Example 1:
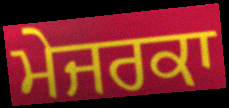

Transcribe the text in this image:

ਮੇਜਰਕਾ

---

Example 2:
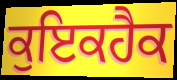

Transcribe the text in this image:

ਕੁਇਕਹੈਕ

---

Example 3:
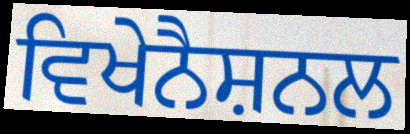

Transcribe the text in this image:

ਵਿਖੇਨੈਸ਼ਨਲ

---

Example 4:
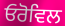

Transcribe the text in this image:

ਓਰੋਵਿਲ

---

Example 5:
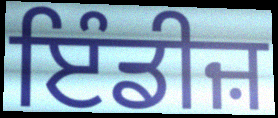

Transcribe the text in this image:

ਇੰਡੀਜ਼